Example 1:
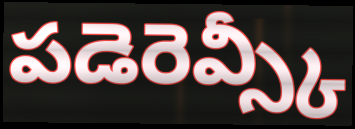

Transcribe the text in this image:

పడెరెవ్స్కీ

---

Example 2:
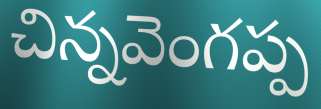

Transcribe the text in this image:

చిన్నవెంగప్ప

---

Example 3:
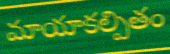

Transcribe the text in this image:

మాయాకల్పితం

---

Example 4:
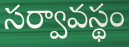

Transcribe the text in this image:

సర్వావస్థం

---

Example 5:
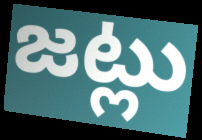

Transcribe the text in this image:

జట్లు